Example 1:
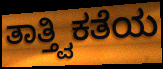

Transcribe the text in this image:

ತಾತ್ತ್ವಿಕತೆಯ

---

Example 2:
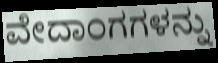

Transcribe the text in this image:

ವೇದಾಂಗಗಳನ್ನು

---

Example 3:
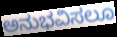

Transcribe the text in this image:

ಅನುಭವಿಸಲೂ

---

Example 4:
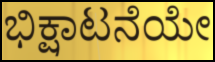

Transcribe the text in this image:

ಭಿಕ್ಷಾಟನೆಯೇ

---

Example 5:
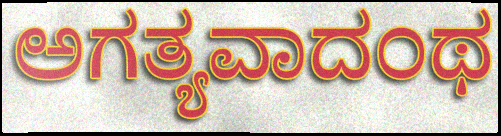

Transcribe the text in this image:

ಅಗತ್ಯವಾದಂಥ